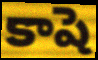
కాషె